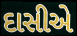
દાસીએ